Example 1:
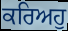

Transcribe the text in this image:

ਕਰਿਅਹੁ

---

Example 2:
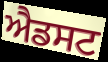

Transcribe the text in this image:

ਐਡਸਟ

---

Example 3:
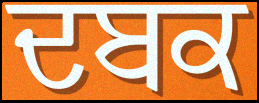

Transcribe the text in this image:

ਦਬਕ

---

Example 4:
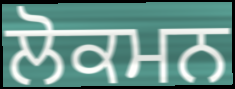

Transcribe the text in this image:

ਲੋਕਮਨ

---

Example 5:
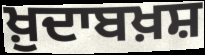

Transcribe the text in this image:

ਖ਼ੁਦਾਬਖ਼ਸ਼